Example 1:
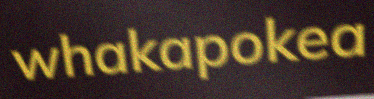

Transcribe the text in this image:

whakapokea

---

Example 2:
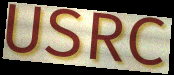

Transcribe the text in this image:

USRC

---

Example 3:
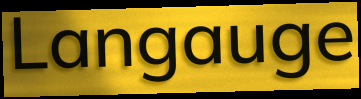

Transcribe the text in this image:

Langauge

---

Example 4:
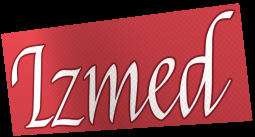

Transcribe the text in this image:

Izmed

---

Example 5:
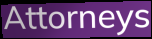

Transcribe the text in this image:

Attorneys